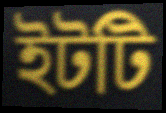
ইটটি